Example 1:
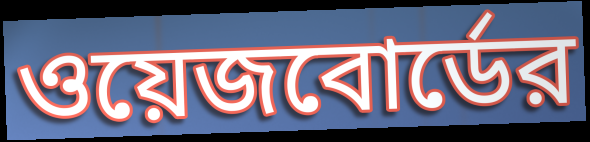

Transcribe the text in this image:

ওয়েজবোর্ডের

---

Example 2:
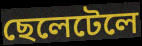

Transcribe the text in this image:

ছেলেটেলে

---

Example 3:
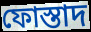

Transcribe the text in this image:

ফোস্তাদ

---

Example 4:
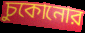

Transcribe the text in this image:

চুকোনোর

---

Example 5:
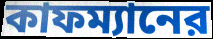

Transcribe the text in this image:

কাফম্যানের